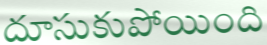
దూసుకుపోయింది